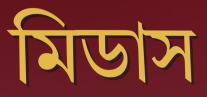
মিডাস